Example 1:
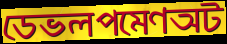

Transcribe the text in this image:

ডেভলপমেণঅট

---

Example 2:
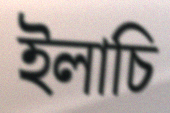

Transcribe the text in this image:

ইলাচি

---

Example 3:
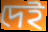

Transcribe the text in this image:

দেই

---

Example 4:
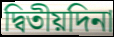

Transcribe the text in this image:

দ্বিতীয়দিনা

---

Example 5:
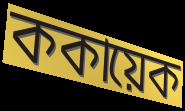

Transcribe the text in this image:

ককায়েক